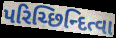
પરિચ્છિન્દિત્વા